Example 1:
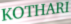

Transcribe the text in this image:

KOTHARI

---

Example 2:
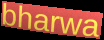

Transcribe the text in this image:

bharwa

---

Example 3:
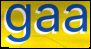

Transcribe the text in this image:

gaa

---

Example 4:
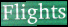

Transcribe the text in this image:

Flights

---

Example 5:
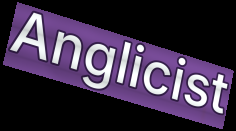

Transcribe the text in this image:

Anglicist